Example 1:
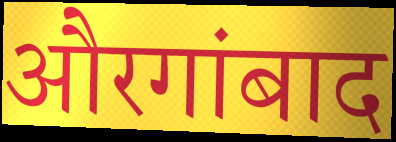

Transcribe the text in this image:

औरगांबाद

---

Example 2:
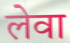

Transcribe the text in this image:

लेवा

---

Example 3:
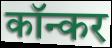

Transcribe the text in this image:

कॉन्कर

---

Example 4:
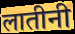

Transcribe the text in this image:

लातीनी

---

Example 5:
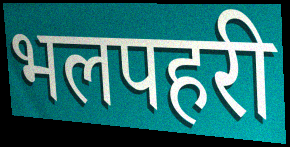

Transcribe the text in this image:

भलपहरी